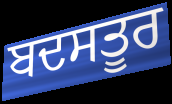
ਬਦਸਤੂਰ